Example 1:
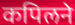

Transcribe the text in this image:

कपिलने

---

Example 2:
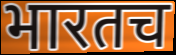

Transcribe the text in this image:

भारतच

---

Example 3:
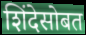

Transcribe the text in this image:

शिंदेसोबत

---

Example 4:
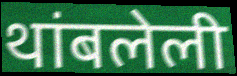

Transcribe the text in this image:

थांबलेली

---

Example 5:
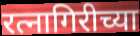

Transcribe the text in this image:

रत्नागिरीच्या